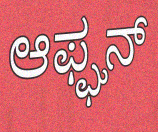
ಆಫ್ಘನ್